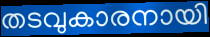
തടവുകാരനായി